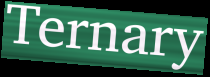
Ternary